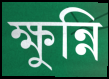
ক্ষুন্নি